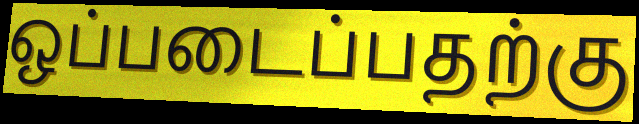
ஒப்படைப்பதற்கு